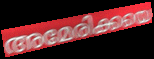
അമേരിക്കയെ